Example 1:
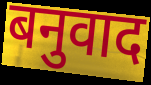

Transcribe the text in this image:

बनुवाद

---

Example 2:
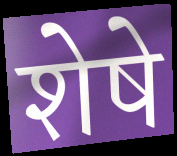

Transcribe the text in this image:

शेषे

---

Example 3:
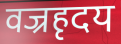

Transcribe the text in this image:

वज्रहृदय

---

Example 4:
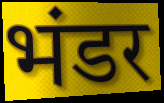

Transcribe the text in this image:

भंडर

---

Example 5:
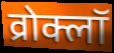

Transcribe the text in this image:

व्रोक्लॉ